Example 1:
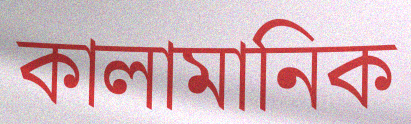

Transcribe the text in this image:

কালামানিক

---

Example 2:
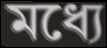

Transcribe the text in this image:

মধ্যে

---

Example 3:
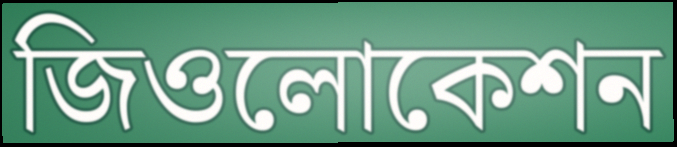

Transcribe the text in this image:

জিওলোকেশন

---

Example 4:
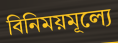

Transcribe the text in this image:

বিনিময়মূল্যে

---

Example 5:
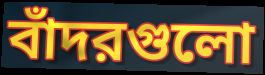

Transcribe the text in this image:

বাঁদরগুলো